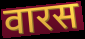
वारस